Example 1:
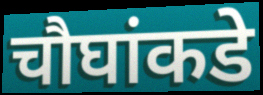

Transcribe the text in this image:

चौघांकडे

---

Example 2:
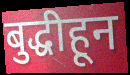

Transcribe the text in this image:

बुद्धीहून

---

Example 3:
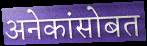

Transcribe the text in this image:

अनेकांसोबत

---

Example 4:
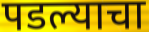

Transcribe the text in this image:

पडल्याचा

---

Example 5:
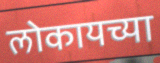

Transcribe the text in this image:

लोकायच्या